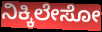
ನಿಕ್ಕಿಲೇಸೋ